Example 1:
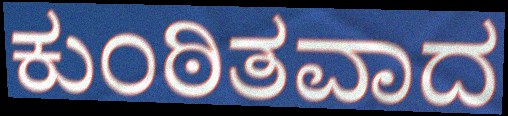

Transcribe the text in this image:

ಕುಂಠಿತವಾದ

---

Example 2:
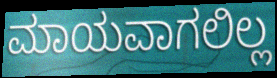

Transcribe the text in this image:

ಮಾಯವಾಗಲಿಲ್ಲ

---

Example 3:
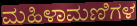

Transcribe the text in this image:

ಮಹಿಳಾಮಣಿಗಳ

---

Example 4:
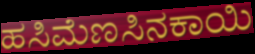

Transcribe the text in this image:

ಹಸಿಮೆಣಸಿನಕಾಯಿ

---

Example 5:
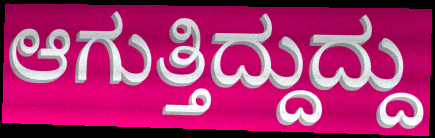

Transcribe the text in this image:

ಆಗುತ್ತಿದ್ದುದ್ದು